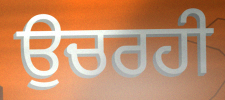
ਉਚਰਹੀ